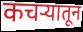
कचर्‍यातून